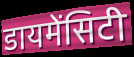
डायमेंसिटी